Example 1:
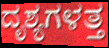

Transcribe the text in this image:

ದೃಶ್ಯಗಳತ್ತ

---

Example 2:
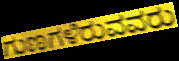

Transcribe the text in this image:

ಗುಣಗಳಿರುವವರು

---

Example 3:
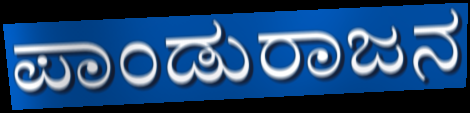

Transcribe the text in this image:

ಪಾಂಡುರಾಜನ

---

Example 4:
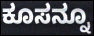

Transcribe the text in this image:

ಕೂಸನ್ನೂ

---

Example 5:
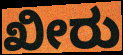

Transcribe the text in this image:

ಖೀರು